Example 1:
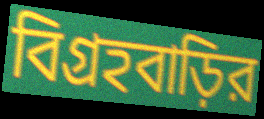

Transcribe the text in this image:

বিগ্রহবাড়ির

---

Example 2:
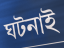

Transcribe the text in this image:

ঘটনাই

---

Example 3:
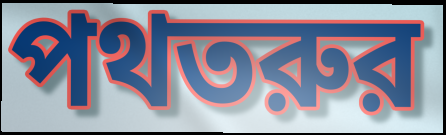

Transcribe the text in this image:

পথতরুর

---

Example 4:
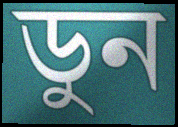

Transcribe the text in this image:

ডুন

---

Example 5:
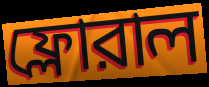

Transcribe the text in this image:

ফ্লোরাল